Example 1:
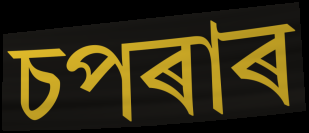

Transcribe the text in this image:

চপৰাৰ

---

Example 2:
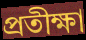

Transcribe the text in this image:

প্ৰতীক্ষা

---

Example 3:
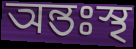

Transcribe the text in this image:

অন্তঃস্থ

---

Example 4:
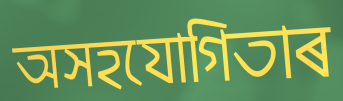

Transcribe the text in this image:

অসহযোগিতাৰ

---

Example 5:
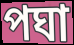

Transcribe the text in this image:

পঘা